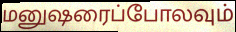
மனுஷரைப்போலவும்